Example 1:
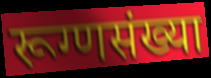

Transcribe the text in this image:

रूग्णसंख्या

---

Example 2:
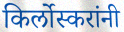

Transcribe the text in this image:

किर्लोस्करांनी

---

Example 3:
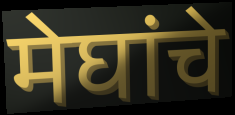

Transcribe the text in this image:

मेघांचे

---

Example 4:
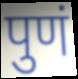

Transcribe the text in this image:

पुणं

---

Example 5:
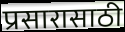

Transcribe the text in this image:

प्रसारासाठी